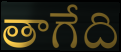
తాగేది